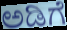
ಅಡಿಗೆ